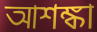
আশঙ্কা